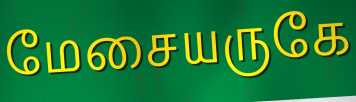
மேசையருகே